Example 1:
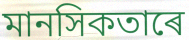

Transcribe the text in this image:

মানসিকতাৰে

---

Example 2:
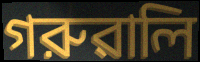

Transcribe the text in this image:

গৰুৱালি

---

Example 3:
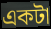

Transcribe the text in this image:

একটা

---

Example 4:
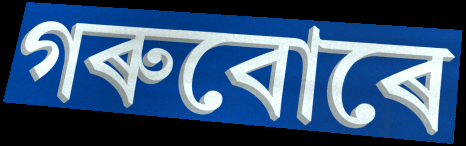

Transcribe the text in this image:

গৰুবোৰে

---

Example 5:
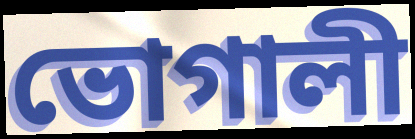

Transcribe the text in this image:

ভোগালী